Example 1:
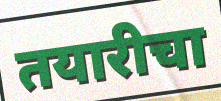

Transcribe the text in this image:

तयारीचा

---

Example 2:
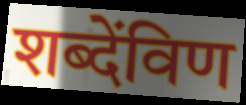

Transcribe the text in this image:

शब्देंविण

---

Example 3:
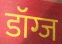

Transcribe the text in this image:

डॉग्ज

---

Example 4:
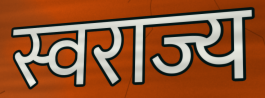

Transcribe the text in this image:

स्वराज्य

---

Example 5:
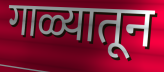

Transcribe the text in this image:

गाळ्यातून